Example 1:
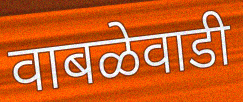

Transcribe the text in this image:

वाबळेवाडी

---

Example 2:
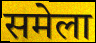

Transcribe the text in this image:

समेला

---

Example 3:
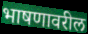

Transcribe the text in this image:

भाषणावरील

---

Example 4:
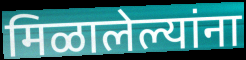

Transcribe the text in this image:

मिळालेल्यांना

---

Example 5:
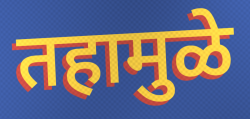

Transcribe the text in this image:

तहामुळे